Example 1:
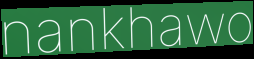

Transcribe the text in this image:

nankhawo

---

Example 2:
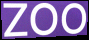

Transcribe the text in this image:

ZOO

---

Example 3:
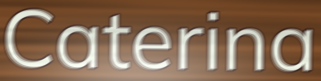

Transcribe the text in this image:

Caterina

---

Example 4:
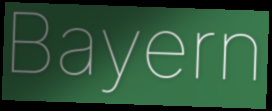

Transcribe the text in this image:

Bayern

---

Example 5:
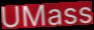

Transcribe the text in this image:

UMass